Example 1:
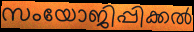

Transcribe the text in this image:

സംയോജിപ്പിക്കൽ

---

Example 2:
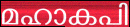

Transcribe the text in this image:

മഹാകപി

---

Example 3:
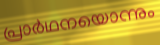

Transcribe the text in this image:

പ്രാർഥനയൊന്നും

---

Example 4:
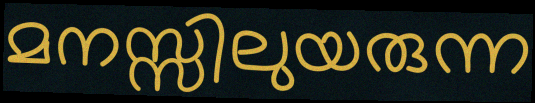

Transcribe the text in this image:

മനസ്സിലുയരുന്ന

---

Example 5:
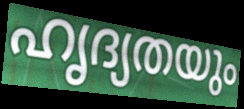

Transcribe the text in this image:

ഹൃദ്യതയും